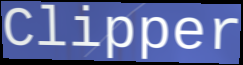
Clipper